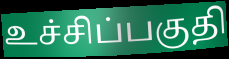
உச்சிப்பகுதி